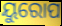
ୟୁରୋପ